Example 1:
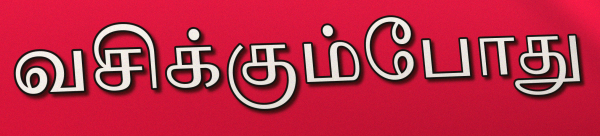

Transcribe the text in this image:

வசிக்கும்போது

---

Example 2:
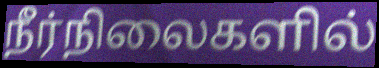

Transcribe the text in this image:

நீர்நிலைகளில்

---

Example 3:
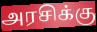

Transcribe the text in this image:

அரசிக்கு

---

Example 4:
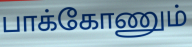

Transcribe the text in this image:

பாக்கோணும்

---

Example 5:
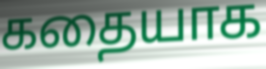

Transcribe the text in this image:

கதையாக